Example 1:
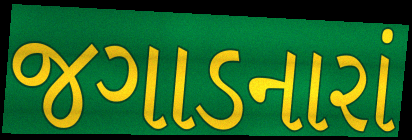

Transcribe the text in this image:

જગાડનારાં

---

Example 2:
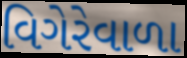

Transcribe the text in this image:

વિગેરેવાળા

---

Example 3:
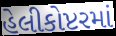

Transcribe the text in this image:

હેલીકોપ્ટરમાં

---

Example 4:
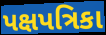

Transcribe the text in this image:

પક્ષપત્રિકા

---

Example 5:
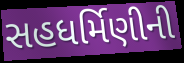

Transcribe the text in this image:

સહધર્મિણીની